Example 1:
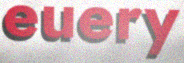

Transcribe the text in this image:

euery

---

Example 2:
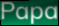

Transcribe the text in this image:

Papa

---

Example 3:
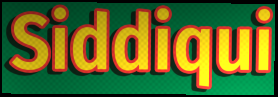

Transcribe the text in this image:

Siddiqui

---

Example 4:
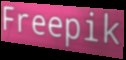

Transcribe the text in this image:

Freepik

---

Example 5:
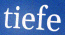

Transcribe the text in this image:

tiefe